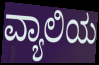
ವ್ಯಾಲಿಯ